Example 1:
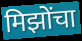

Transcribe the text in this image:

मिझोंचा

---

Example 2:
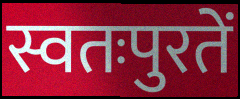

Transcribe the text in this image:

स्वतःपुरतें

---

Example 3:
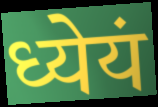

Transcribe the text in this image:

ध्येयं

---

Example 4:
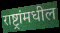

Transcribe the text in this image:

राष्ट्रांमधील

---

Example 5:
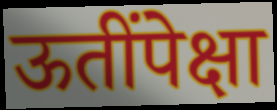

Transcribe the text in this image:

ऊतींपेक्षा